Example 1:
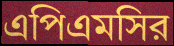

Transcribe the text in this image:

এপিএমসির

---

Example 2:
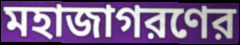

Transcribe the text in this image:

মহাজাগরণের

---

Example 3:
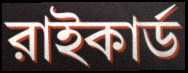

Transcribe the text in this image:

রাইকার্ড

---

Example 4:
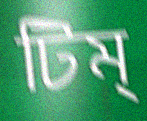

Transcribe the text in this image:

টিম্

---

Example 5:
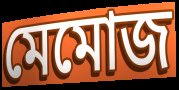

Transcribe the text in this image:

মেমোজ